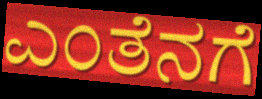
ಎಂತೆನಗೆ